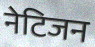
नेटिजन